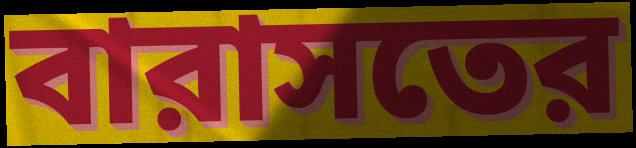
বারাসতের